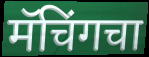
मॅचिंगचा